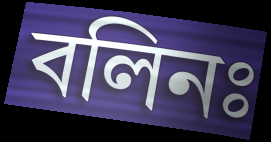
বলিনঃ